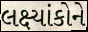
લક્ષ્યાંકોને